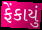
ફેંકાયું